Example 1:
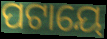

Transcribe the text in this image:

ପଟାୟେ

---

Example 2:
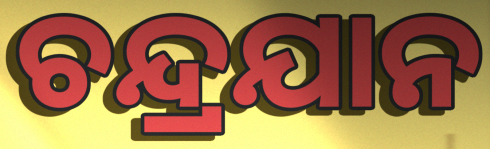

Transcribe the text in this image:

ଚନ୍ଦ୍ରଯାନ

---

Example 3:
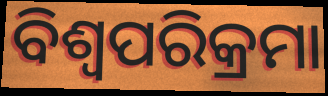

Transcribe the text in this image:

ବିଶ୍ୱପରିକ୍ରମା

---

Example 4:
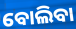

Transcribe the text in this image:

ବୋଲିବା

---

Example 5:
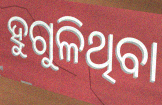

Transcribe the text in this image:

ହୁଗୁଳିଥିବା